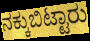
ನಕ್ಕುಬಿಟ್ಟಾರು